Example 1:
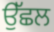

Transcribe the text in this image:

ਉੱਛਲ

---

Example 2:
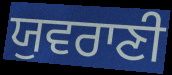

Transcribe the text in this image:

ਯੁਵਰਾਣੀ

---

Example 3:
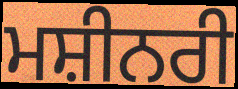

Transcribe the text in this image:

ਮਸ਼ੀਨਰੀ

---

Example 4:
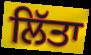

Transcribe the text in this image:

ਲਿੱਤਾ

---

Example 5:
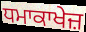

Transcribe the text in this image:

ਧਮਾਕਾਖੇਜ਼